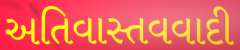
અતિવાસ્તવવાદી